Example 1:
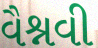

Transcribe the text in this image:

વૈશ્નવી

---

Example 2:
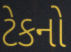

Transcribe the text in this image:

ટેકનો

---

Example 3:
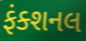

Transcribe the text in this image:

ફંક્શનલ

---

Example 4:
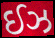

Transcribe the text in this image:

ઈઝ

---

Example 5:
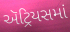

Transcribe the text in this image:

ઍટ્રિયસમાં